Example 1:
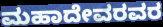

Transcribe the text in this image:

ಮಹಾದೇವರವರ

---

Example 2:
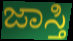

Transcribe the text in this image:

ಜಾಸ್ತಿ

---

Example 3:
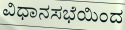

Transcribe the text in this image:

ವಿಧಾನಸಭೆಯಿಂದ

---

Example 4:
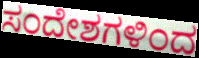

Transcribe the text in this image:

ಸಂದೇಶಗಳಿಂದ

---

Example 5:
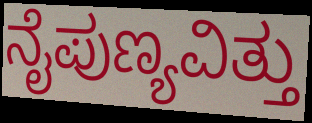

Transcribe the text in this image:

ನೈಪುಣ್ಯವಿತ್ತು